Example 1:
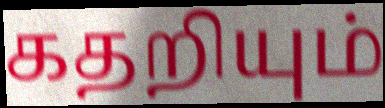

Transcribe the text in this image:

கதறியும்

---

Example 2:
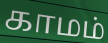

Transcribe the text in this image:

காமம்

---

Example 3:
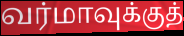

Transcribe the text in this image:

வர்மாவுக்குத்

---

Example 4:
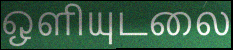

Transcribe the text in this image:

ஒளியுடலை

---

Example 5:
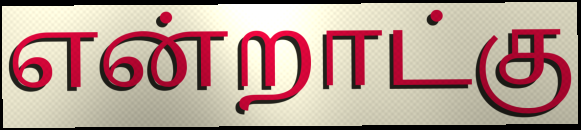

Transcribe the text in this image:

என்றாட்கு